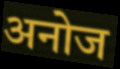
अनोज